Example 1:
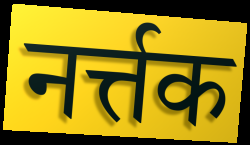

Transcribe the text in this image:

नर्त्तक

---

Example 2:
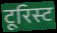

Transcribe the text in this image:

टूरिस्ट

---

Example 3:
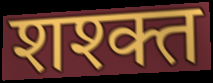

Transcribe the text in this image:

शश्क्त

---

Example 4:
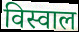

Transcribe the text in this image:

विस्वाल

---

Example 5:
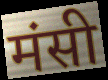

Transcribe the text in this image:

मंसी